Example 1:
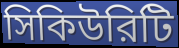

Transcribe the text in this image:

সিকিউরিটি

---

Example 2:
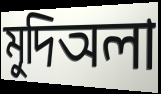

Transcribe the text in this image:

মুদিঅলা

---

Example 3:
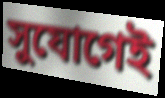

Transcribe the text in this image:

সুযোগেই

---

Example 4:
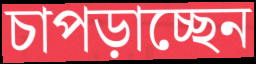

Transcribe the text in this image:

চাপড়াচ্ছেন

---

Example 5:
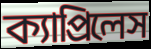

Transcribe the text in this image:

ক্যাপ্রিলেস